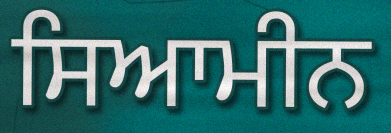
ਸਿਆਮੀਨ